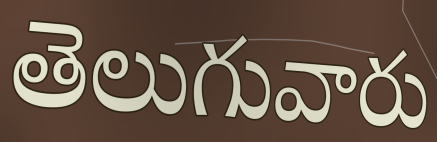
తెలుగువారు